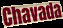
Chavada